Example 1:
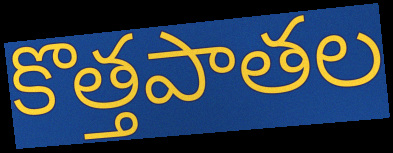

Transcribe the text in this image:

కొత్తపాతల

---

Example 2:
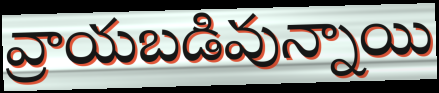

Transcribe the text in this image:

వ్రాయబడివున్నాయి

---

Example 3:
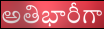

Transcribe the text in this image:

అతిభారీగా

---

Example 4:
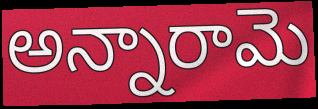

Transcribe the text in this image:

అన్నారామె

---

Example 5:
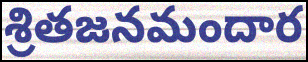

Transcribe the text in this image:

శ్రితజనమందార